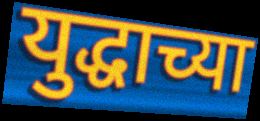
युद्धाच्या